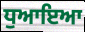
ਧੁਆਇਆ